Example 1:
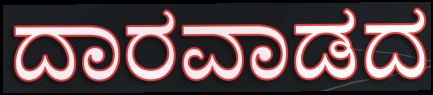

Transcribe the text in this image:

ದಾರವಾಡದ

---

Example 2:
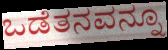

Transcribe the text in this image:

ಒಡೆತನವನ್ನೂ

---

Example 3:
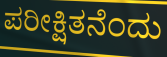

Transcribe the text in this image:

ಪರೀಕ್ಷಿತನೆಂದು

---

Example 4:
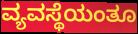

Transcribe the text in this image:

ವ್ಯವಸ್ಥೆಯಂತೂ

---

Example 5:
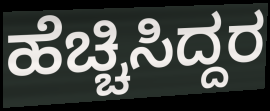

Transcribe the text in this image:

ಹೆಚ್ಚಿಸಿದ್ದರ